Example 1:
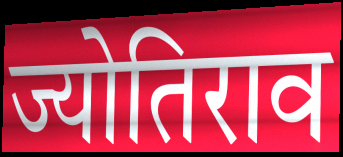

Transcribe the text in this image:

ज्योतिराव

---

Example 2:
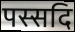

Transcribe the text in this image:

पस्सदि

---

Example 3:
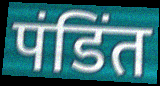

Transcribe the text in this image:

पंडिंत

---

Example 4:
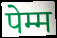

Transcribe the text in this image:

पेम्म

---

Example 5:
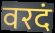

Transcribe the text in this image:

वरदं